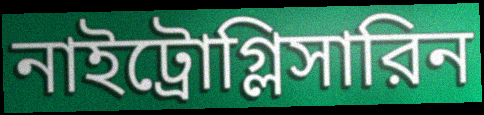
নাইট্রোগ্লিসারিন